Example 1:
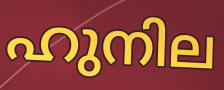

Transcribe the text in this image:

ഹുനില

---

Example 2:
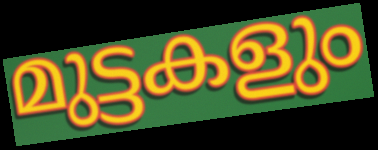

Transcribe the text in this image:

മുട്ടകളും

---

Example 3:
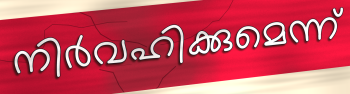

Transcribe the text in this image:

നിർവഹിക്കുമെന്ന്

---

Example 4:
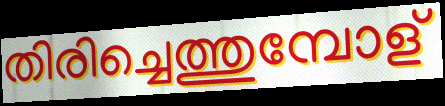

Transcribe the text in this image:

തിരിച്ചെത്തുമ്പോള്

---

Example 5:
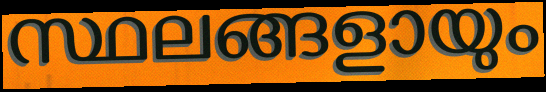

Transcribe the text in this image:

സ്ഥലങ്ങളായും